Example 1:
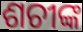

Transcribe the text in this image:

ଶଚୀଙ୍କ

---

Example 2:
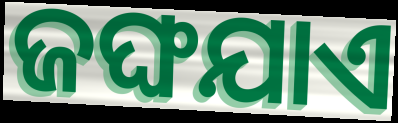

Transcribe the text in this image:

ଜଙ୍ଘଯାଏ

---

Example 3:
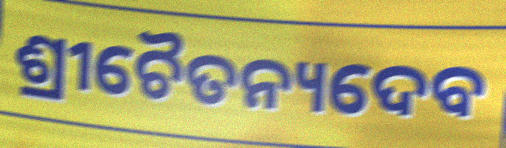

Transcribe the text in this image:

ଶ୍ରୀଚୈତନ୍ୟଦେବ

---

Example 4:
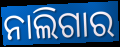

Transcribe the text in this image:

ନାଲିଗାର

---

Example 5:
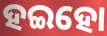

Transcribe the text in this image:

ହଇହୋ